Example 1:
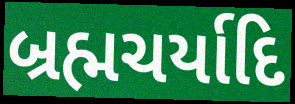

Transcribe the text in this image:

બ્રહ્મચર્યાદિ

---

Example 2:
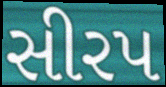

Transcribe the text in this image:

સીરપ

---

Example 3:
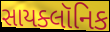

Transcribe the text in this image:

સાયક્લૉનિક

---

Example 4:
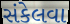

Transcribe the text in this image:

સંકેલવા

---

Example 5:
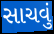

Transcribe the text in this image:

સાચવું